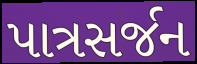
પાત્રસર્જન